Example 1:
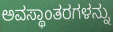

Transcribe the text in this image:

ಅವಸ್ಥಾಂತರಗಳನ್ನು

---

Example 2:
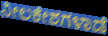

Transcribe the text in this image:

ನೀಲಕೇಶಗಳಾಡೆ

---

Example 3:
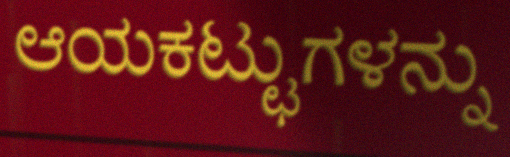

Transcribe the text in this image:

ಆಯಕಟ್ಟುಗಳನ್ನು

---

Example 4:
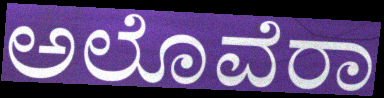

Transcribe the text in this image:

ಅಲೊವೆರಾ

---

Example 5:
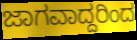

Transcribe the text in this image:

ಜಾಗವಾದ್ದರಿಂದ